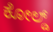
ಕೋಲ್ಡ್